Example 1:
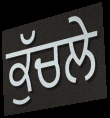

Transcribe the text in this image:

ਕੁੱਚਲੇ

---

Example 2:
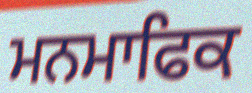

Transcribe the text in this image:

ਮਨਮਾਫਿਕ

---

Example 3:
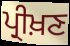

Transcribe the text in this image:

ਪ੍ਰੀਖ਼ਣ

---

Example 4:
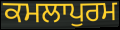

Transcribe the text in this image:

ਕਮਲਾਪੁਰਮ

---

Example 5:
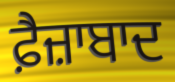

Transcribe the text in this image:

ਫ਼ੈਜ਼ਾਬਾਦ